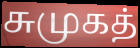
சுமுகத்